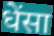
धेंसा